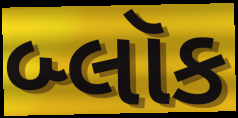
બ્લૉક